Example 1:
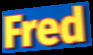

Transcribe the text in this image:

Fred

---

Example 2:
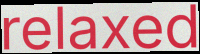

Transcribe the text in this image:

relaxed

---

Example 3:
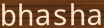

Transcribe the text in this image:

bhasha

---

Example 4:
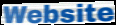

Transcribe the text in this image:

Website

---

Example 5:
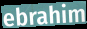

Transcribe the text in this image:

ebrahim